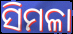
ସିମଳା